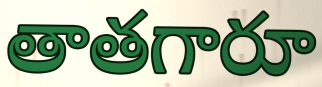
తాతగారూ